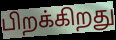
பிறக்கிறது